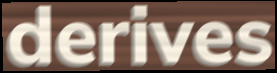
derives